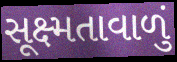
સૂક્ષ્મતાવાળું